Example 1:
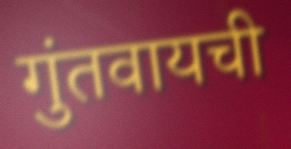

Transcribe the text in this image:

गुंतवायची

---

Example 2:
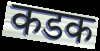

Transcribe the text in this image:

कडक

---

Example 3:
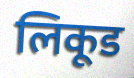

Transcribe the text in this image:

लिकूड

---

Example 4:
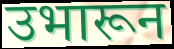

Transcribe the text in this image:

उभारून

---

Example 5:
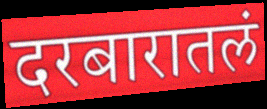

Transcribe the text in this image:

दरबारातलं